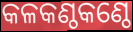
କଳକଣ୍ଠକଣ୍ଠେ